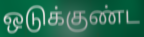
ஒடுக்குண்ட